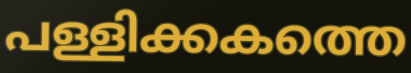
പള്ളിക്കകത്തെ